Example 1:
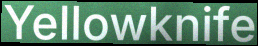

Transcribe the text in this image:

Yellowknife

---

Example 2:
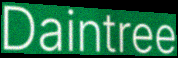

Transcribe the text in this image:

Daintree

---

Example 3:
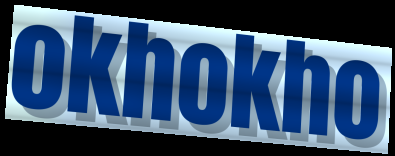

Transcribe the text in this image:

okhokho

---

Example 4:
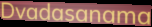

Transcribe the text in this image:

Dvadasanama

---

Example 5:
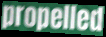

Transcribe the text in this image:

propelled